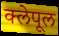
क्लेपूल